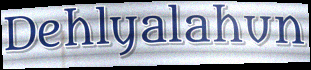
Dehlyalahun